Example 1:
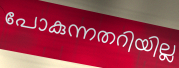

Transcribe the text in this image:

പോകുന്നതറിയില്ല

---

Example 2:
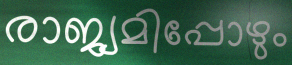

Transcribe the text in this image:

രാജ്യമിപ്പോഴും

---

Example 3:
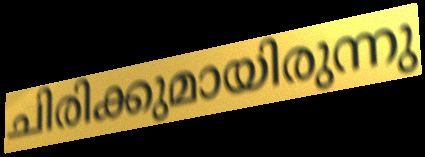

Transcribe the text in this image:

ചിരിക്കുമായിരുന്നു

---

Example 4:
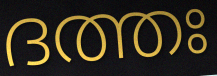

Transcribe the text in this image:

ദത്തഃ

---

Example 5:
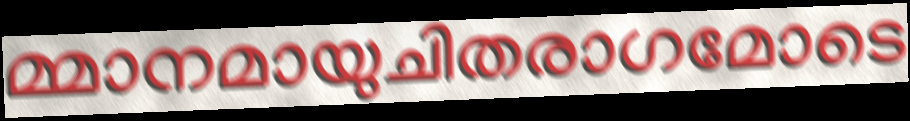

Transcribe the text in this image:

മ്മാനമായുചിതരാഗമോടെ